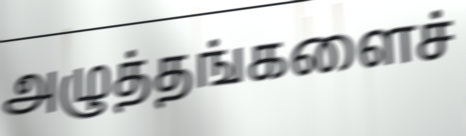
அழுத்தங்களைச்